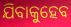
ଯିବାକୁହେବ